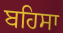
ਬਹਿਸਾ